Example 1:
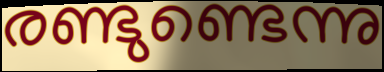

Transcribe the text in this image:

രണ്ടുണ്ടെന്നു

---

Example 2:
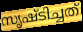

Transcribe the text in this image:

സൃഷ്ടിച്ചത്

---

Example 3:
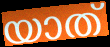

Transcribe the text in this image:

യാത്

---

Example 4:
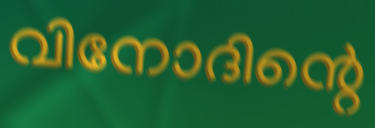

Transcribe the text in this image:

വിനോദിന്റെ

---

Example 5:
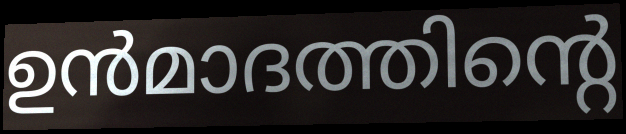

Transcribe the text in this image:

ഉൻമാദത്തിന്റെ